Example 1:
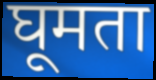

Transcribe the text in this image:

घूमता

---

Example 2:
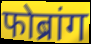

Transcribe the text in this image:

फोब्रांग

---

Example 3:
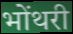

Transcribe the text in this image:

भोंथरी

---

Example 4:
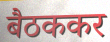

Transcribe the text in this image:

बैठककर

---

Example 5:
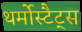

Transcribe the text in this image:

थर्मोस्टैट्स